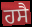
ਹਸੈ